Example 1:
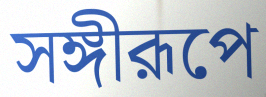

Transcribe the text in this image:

সঙ্গীরূপে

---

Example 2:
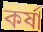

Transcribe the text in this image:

কর্ষা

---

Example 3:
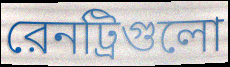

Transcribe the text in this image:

রেনট্রিগুলো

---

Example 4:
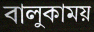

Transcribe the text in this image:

বালুকাময়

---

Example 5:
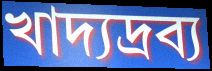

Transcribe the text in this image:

খাদ্যদ্রব্য